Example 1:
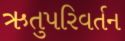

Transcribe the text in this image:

ઋતુપરિવર્તન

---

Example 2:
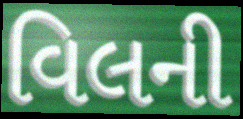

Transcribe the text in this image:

વિલની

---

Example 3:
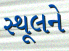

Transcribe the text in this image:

સ્થૂલને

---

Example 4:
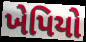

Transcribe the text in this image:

ખેપિયો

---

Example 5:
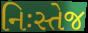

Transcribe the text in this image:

નિઃસ્તેજ